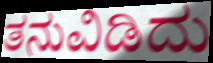
ತನುವಿಡಿದು